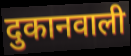
दुकानवाली